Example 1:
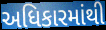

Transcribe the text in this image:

અધિકારમાંથી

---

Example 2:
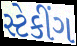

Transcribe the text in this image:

સ્ટેકીંગ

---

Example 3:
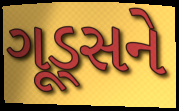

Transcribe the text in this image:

ગૂડ્સને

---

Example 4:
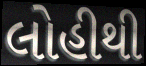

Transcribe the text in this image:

લોહીથી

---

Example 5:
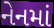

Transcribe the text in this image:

નેનમાં